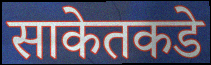
साकेतकडे